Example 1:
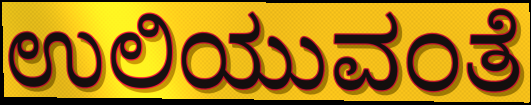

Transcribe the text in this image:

ಉಲಿಯುವಂತೆ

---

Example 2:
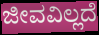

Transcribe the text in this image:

ಜೀವವಿಲ್ಲದೆ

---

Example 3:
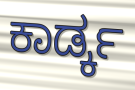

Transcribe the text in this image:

ಕಾರ್ಡ್ಕ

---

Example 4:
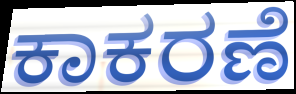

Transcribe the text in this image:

ಕಾಕರಣೆ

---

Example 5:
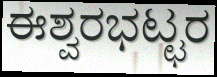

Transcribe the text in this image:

ಈಶ್ವರಭಟ್ಟರ